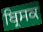
ਬ੍ਰਿਸਕ